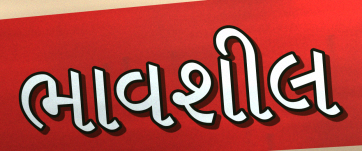
ભાવશીલ